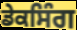
ਡੇਕਸਿੰਗ